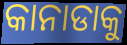
କାନାଡାକୁ